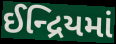
ઈન્દ્રિયમાં